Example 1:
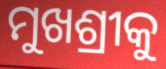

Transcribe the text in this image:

ମୁଖଶ୍ରୀକୁ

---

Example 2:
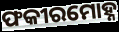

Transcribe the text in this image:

ଫକୀରମୋହ୍ନ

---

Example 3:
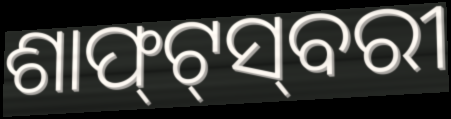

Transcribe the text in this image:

ଶାଫ୍‍ଟ୍‍ସ୍‍ବରୀ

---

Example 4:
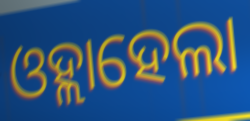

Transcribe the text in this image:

ଓହ୍ଲାହେଲା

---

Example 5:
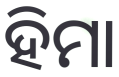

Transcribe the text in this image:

ହିମା